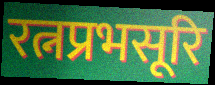
रत्नप्रभसूरि